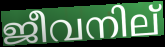
ജീവനില്